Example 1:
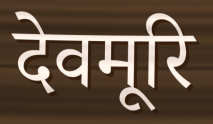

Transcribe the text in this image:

देवमूरि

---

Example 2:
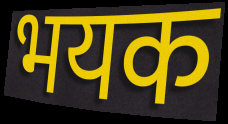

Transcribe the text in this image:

भयक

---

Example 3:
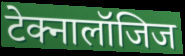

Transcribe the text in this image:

टेक्नालॉजिज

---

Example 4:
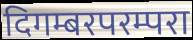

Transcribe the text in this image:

दिगम्बरपरम्परा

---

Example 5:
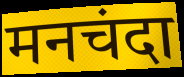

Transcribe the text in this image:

मनचंदा